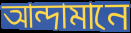
আন্দামানে